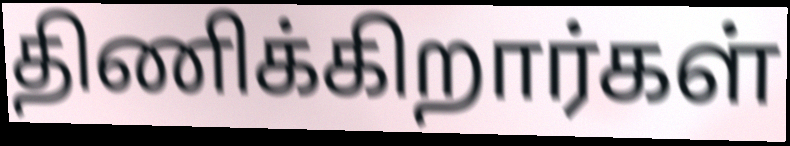
திணிக்கிறார்கள்